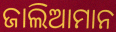
ଜାଲିଆମାନ